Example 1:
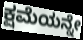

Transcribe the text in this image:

ಕ್ಷಮೆಯನ್ನೇ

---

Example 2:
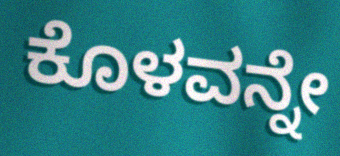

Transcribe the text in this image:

ಕೊಳವನ್ನೇ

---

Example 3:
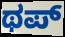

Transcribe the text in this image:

ಥಪ್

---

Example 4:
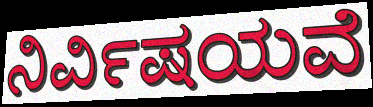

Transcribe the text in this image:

ನಿರ್ವಿಷಯವೆ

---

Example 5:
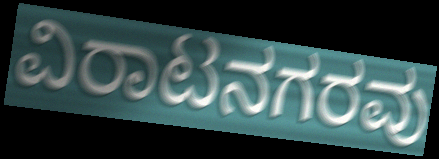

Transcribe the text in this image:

ವಿರಾಟನಗರವು